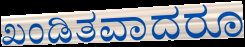
ಖಂಡಿತವಾದರೂ